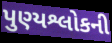
પુણ્યશ્લોકની